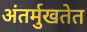
अंतर्मुखतेत